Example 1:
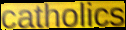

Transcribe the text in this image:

catholics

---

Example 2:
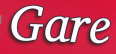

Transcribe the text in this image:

Gare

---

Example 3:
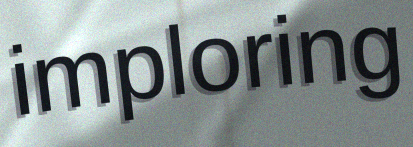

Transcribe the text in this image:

imploring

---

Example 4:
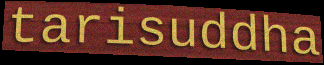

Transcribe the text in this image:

tarisuddha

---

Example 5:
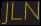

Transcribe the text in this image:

JLN